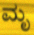
ಮೃ